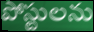
పోస్టులను